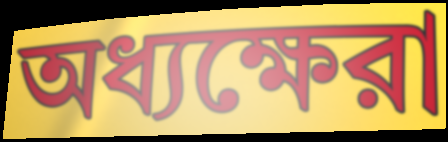
অধ্যক্ষেরা